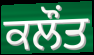
ਕਲੌਂਤ